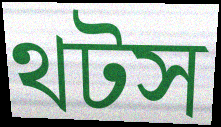
থটস